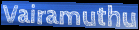
Vairamuthu